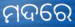
ମଦରେ